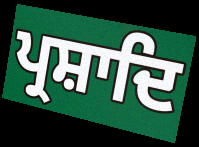
ਪ੍ਰਸ਼ਾਦਿ